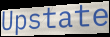
Upstate